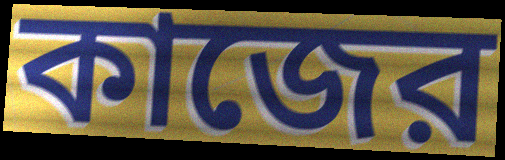
কাজের